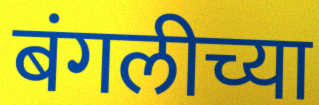
बंगलीच्या